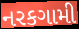
નરકગામી